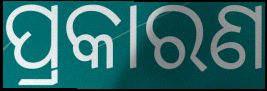
ପ୍ରକାରଣ